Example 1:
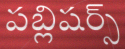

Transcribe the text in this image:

పబ్లిషర్స్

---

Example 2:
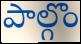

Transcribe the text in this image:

పాల్గొం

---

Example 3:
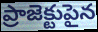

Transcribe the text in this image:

ప్రాజెక్టుపైన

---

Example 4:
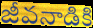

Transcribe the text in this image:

జీవనాడికి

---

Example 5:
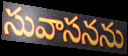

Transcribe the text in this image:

సువాసనను